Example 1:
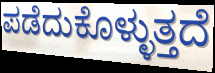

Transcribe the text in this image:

ಪಡೆದುಕೊಳ್ಳುತ್ತದೆ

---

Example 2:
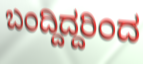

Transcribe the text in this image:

ಬಂದ್ದಿದ್ದರಿಂದ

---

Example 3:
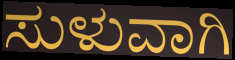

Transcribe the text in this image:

ಸುಳುವಾಗಿ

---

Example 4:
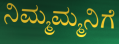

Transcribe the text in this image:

ನಿಮ್ಮಮ್ಮನಿಗೆ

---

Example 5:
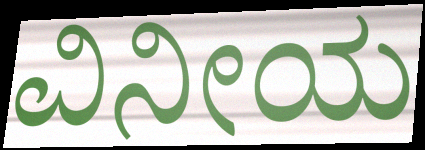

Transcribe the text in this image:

ವಿನೀಯ